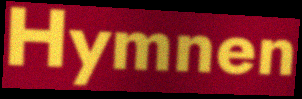
Hymnen